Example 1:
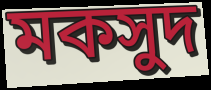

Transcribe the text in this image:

মকসুদ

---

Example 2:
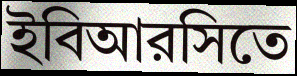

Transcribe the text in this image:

ইবিআরসিতে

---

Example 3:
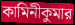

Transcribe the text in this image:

কামিনীকুমার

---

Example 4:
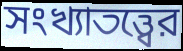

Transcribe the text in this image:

সংখ্যাতত্ত্বের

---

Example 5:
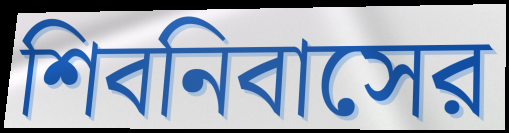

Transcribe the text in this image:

শিবনিবাসের